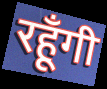
रहूँगी